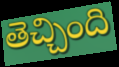
తెచ్చింది